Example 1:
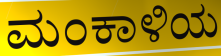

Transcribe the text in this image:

ಮಂಕಾಳಿಯ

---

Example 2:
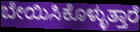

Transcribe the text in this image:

ಬೇಯಿಸಿಕೊಳ್ಳುತ್ತಾರೆ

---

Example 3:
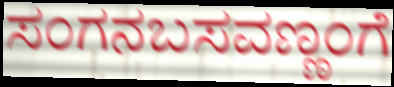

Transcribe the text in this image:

ಸಂಗನಬಸವಣ್ಣಂಗೆ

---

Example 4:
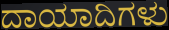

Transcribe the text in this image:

ದಾಯಾದಿಗಳು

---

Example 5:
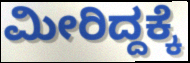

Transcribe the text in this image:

ಮೀರಿದ್ದಕ್ಕೆ